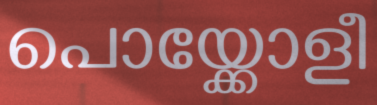
പൊയ്ക്കോളീ